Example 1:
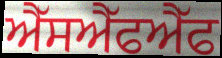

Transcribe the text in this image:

ਐੱਸਐੱਫਐੱਫ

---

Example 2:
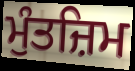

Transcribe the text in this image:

ਮੁੰਤਜ਼ਿਮ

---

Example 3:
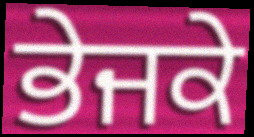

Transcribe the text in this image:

ਭੇਜਕੇ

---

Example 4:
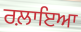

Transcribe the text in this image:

ਰਲ਼ਾਇਆ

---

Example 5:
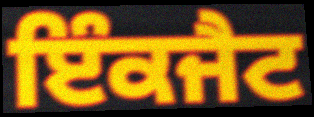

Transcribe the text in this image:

ਇੰਕਜੈਟ